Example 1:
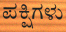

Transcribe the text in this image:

ಪಕ್ಷಿಗಳು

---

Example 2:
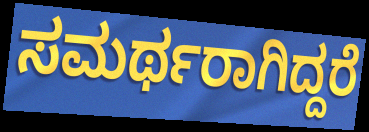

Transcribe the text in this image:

ಸಮರ್ಥರಾಗಿದ್ದರೆ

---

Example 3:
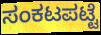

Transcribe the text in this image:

ಸಂಕಟಪಟ್ಟೆ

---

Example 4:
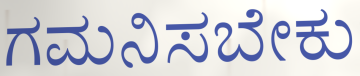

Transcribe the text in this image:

ಗಮನಿಸಬೇಕು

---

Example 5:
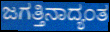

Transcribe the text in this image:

ಜಗತ್ತಿನಾದ್ಯಂತ